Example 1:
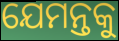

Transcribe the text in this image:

ଯେମନ୍ତକୁ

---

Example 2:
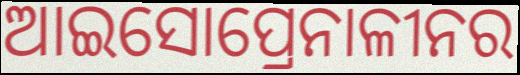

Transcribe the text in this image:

ଆଇସୋପ୍ରେନାଳୀନର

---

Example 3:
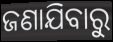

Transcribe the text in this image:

ଜଣାଯିବାରୁ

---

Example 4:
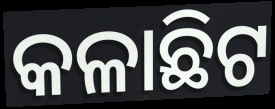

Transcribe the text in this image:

କଳାଛିଟ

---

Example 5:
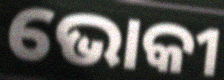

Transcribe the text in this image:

ଭୋକୀ